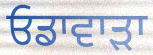
ਓਡਾਵਾੜਾ